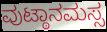
ವುಟ್ಠಾನಮಸ್ಸ